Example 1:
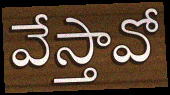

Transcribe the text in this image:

వేస్తావో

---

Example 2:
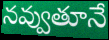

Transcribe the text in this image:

నవ్వుతూనే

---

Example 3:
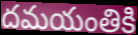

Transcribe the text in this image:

దమయంతికి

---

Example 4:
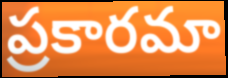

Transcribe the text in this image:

ప్రకారమా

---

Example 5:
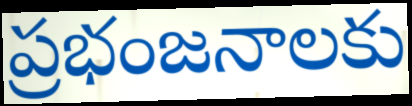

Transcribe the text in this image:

ప్రభంజనాలకు